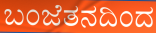
ಬಂಜೆತನದಿಂದ